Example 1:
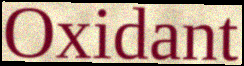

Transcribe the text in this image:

Oxidant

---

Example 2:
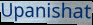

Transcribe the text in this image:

Upanishat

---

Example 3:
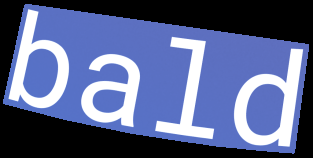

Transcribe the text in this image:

bald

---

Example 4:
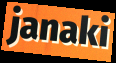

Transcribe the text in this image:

janaki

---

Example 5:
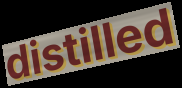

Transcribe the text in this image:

distilled